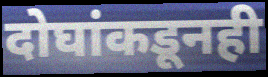
दोघांकडूनही